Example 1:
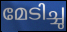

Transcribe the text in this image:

മേടിച്ചു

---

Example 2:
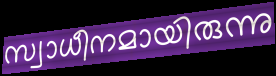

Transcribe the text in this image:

സ്വാധീനമായിരുന്നു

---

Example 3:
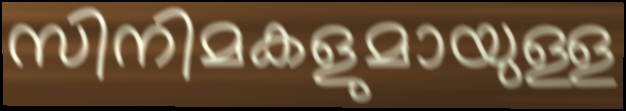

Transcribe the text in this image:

സിനിമകളുമായുള്ള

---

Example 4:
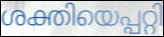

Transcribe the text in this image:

ശക്തിയെപ്പറ്റി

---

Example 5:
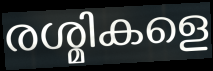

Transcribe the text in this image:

രശ്മികളെ